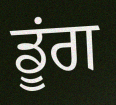
ਡੂਂਗ